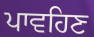
ਪਾਵਹਿਣ